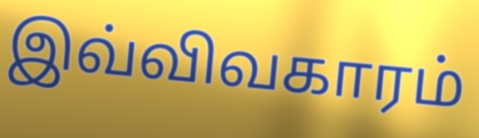
இவ்விவகாரம்